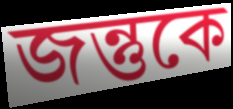
জন্তুকে